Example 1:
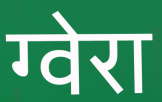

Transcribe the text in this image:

ग्वेरा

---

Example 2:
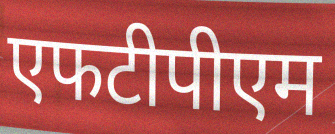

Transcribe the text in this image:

एफटीपीएम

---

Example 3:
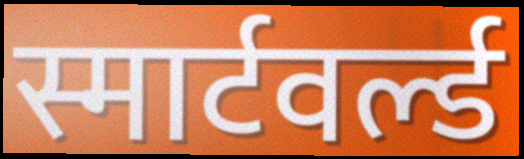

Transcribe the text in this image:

स्मार्टवर्ल्ड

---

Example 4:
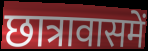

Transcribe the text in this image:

छात्रावासमें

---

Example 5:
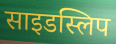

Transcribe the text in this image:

साइडस्लिप